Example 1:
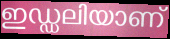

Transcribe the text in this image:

ഇഡ്ഡലിയാണ്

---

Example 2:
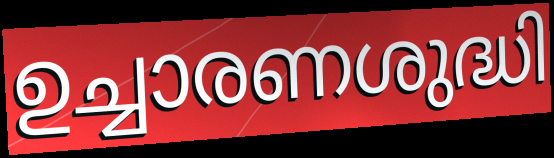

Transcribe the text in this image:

ഉച്ചാരണശുദ്ധി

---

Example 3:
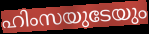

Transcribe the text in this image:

ഹിംസയുടേയും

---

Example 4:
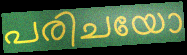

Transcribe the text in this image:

പരിചയോ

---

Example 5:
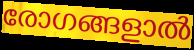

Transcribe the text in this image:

രോഗങ്ങളാൽ